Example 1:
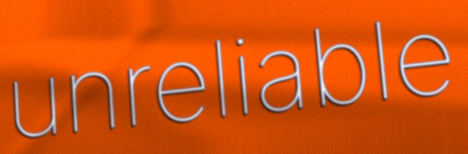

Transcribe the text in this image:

unreliable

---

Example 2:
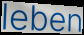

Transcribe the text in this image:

leben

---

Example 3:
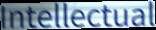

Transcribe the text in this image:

Intellectual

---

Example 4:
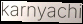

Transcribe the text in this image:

karnyachi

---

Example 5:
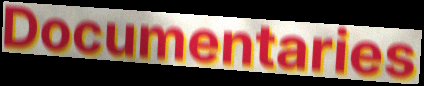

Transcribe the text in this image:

Documentaries